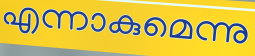
എന്നാകുമെന്നു